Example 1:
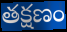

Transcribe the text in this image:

తక్షణం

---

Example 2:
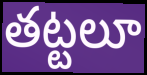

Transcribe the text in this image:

తట్టలూ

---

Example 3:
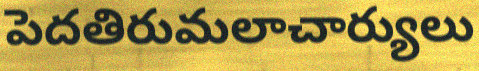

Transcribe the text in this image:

పెదతిరుమలాచార్యులు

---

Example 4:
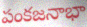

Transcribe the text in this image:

పంకజనాభా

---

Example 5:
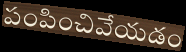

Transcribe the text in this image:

పంపించివేయడం